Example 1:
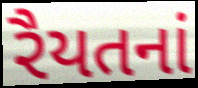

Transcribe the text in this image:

રૈયતનાં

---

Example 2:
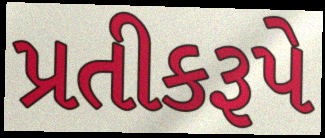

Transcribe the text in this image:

પ્રતીકરૂપે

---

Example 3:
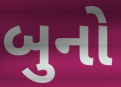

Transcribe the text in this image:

બુનો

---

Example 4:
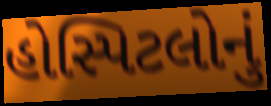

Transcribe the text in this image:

હોસ્પિટલોનું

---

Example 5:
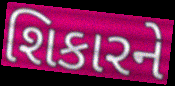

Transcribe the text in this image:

શિકારને